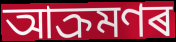
আক্ৰমণৰ